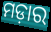
ମଡ଼ାର